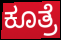
ಕೂತ್ರೆ